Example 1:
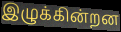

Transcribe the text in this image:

இழுக்கின்றன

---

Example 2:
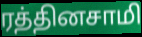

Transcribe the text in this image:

ரத்தினசாமி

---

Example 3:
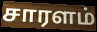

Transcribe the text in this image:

சாரளம்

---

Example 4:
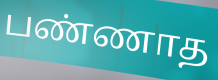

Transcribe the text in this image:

பண்ணாத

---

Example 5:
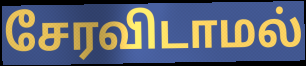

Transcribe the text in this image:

சேரவிடாமல்